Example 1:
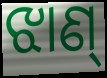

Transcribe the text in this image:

ଝାଣ୍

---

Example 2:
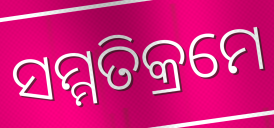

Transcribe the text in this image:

ସମ୍ମତିକ୍ରମେ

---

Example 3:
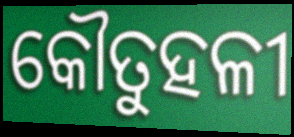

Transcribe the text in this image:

କୌତୁହଳୀ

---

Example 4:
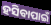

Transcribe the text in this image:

ହସିବାପାଇଁ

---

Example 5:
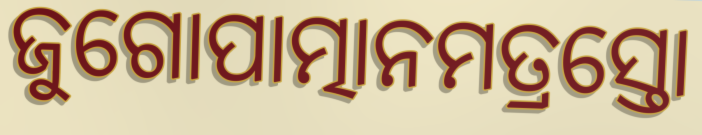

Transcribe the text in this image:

ଜୁଗୋପାତ୍ମାନମତ୍ରସ୍ତୋ